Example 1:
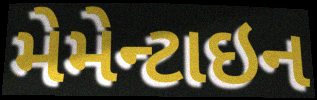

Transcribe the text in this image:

મેમેન્ટાઇન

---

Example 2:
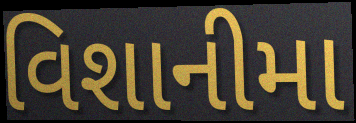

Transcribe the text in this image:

વિશાનીમા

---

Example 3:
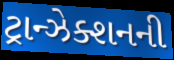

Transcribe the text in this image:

ટ્રાન્ઝેક્શનની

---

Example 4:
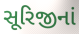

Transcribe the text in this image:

સૂરિજીનાં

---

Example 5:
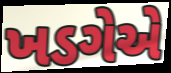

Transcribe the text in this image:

ખડગેએ